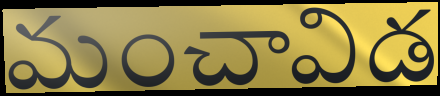
మంచావిడ